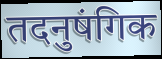
तदनुषंगिक